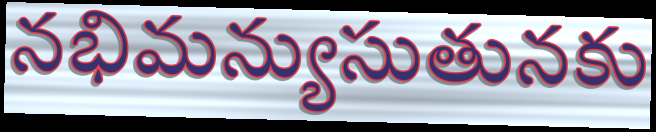
నభిమన్యుసుతునకు